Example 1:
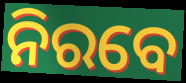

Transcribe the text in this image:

ନିରବେ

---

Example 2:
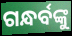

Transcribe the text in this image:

ଗନ୍ଧର୍ବଙ୍କୁ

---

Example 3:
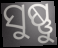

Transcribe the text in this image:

ସୁଷ୍ଣୁ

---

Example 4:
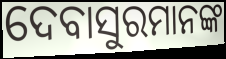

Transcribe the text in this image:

ଦେବାସୁରମାନଙ୍କ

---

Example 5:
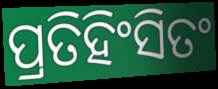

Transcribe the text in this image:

ପ୍ରତିହିଂସିତଂ